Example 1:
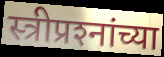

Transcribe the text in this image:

स्त्रीप्रश्नांच्या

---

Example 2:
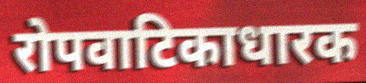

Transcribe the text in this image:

रोपवाटिकाधारक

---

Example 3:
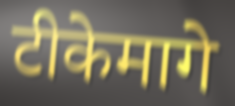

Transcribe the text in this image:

टीकेमागे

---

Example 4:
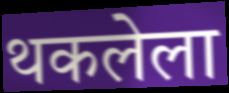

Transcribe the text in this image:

थकलेला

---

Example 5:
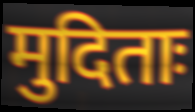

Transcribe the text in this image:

मुदिताः